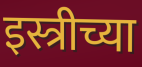
इस्त्रीच्या